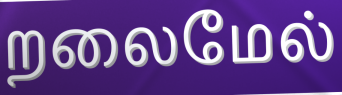
றலைமேல்